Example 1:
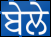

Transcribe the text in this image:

ਬੇਲੇ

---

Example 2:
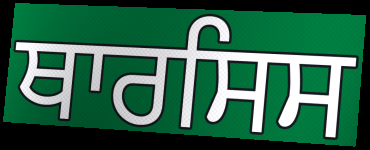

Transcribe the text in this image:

ਥਾਰਸਿਸ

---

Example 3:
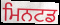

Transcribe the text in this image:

ਮਿਨਟਡ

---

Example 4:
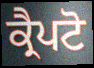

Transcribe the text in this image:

ਕ੍ਰੈਪਟੋ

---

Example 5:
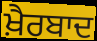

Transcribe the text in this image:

ਖ਼ੈਰਬਾਦ